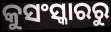
କୁସଂସ୍କାରରୁ